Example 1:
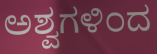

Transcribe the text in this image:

ಅಶ್ವಗಳಿಂದ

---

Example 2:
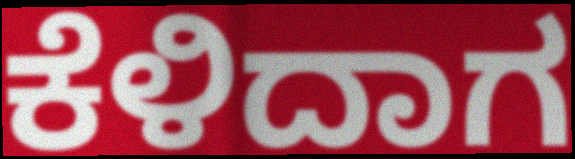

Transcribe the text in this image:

ಕೆಳಿದಾಗ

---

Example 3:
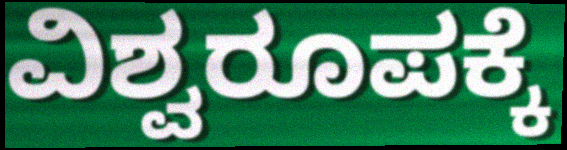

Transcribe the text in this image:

ವಿಶ್ವರೂಪಕ್ಕೆ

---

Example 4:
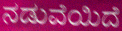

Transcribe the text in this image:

ನಡುವೆಯಿದೆ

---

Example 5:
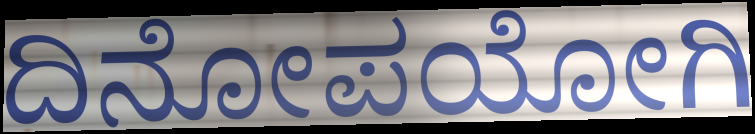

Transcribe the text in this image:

ದಿನೋಪಯೋಗಿ